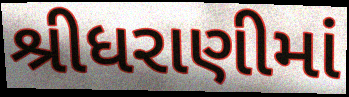
શ્રીધરાણીમાં